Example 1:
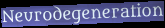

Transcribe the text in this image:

Neurodegeneration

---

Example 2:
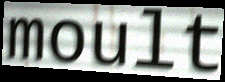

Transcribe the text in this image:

moult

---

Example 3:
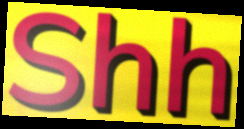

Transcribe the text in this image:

Shh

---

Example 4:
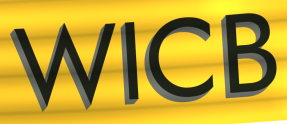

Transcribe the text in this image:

WICB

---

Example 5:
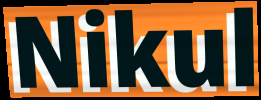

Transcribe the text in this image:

Nikul